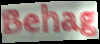
Behag